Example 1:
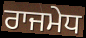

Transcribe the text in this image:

ਰਾਜਮੇਧ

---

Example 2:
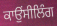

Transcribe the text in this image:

ਕਾਉਂਸੀਲਿੰਗ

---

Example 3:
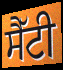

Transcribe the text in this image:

ਸੈੱਟੀ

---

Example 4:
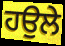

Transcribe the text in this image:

ਹਉਲੇ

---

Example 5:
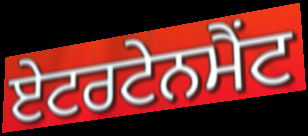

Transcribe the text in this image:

ਏਟਰਟੇਨਮੈਂਟ